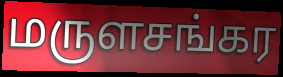
மருளசங்கர